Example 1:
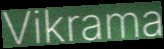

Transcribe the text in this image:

Vikrama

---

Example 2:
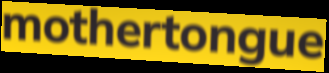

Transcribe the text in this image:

mothertongue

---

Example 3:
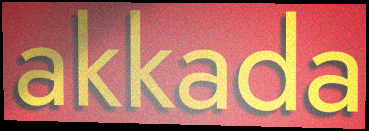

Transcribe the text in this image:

akkada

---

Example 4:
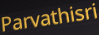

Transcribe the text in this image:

Parvathisri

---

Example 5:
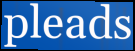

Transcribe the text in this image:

pleads